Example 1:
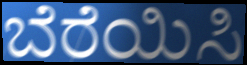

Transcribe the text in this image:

ಬೆರೆಯಿಸಿ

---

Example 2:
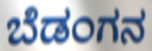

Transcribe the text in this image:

ಬೆಡಂಗನ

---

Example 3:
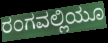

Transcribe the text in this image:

ರಂಗವಲ್ಲಿಯೂ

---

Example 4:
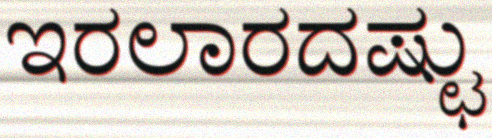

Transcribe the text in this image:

ಇರಲಾರದಷ್ಟು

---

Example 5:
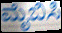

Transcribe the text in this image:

ಮೈಬಿಸಿ